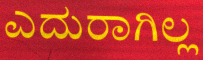
ಎದುರಾಗಿಲ್ಲ